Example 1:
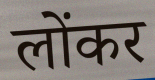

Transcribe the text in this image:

लोंकर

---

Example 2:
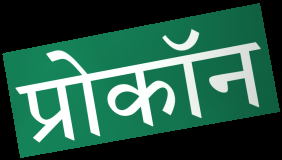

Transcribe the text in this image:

प्रोकॉन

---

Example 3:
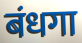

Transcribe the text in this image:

बंधगा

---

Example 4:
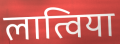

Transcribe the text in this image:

लात्विया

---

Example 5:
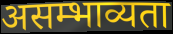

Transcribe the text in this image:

असम्भाव्यता